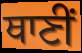
ਥਾਣੀਂ